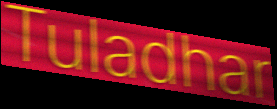
Tuladhar